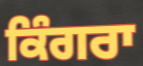
ਕਿੰਗਰਾ